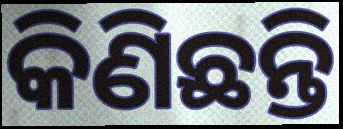
କିଣିଛନ୍ତି